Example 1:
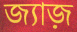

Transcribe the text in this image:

জ্যাজ়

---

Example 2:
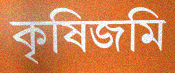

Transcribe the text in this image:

কৃষিজমি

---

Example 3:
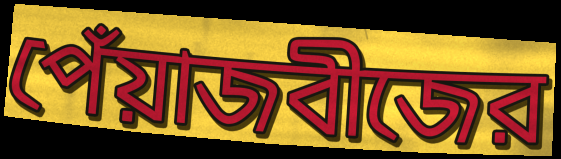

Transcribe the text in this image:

পেঁয়াজবীজের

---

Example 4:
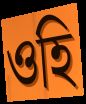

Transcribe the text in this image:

ওহি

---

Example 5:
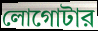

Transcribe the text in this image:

লোগোটার